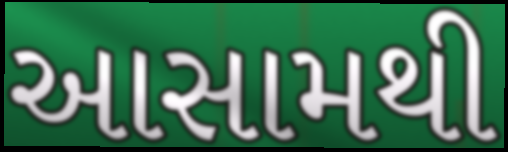
આસામથી